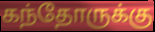
கந்தோருக்கு